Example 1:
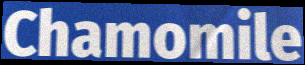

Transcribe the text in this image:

Chamomile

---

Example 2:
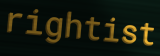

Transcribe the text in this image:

rightist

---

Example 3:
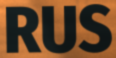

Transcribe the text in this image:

RUS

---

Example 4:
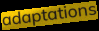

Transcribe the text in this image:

adaptations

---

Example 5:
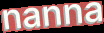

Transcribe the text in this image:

nanna